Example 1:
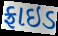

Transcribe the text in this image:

ફ્રાઇડ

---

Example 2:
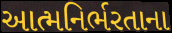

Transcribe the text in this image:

આત્મનિર્ભરતાના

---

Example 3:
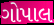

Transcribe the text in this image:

ગોપાલ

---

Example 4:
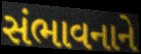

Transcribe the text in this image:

સંભાવનાને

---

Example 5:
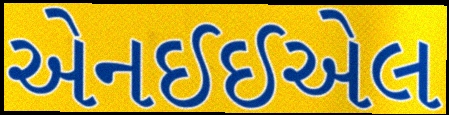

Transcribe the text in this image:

એનઈઈએલ